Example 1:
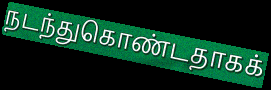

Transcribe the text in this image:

நடந்துகொண்டதாகக்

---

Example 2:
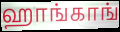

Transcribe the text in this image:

ஹாங்காங்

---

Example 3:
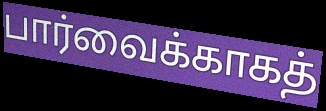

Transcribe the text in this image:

பார்வைக்காகத்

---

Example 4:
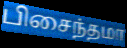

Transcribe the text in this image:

பிசைந்தமா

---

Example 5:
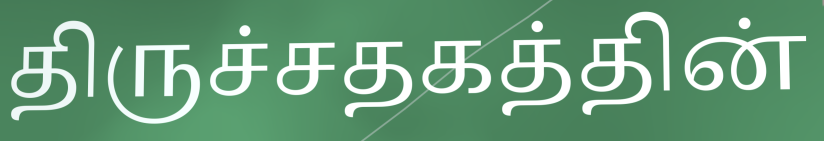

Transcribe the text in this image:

திருச்சதகத்தின்